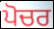
ਪੋਚਰ